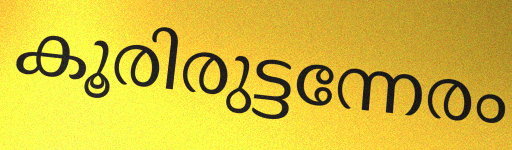
കൂരിരുട്ടന്നേരം